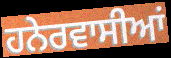
ਹਨੇਰਵਾਸੀਆਂ